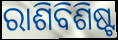
ରାଶିବିଶିଷ୍ଟ